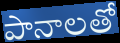
పానాలతో